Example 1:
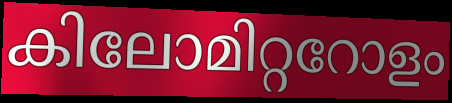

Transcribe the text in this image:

കിലോമിറ്ററോളം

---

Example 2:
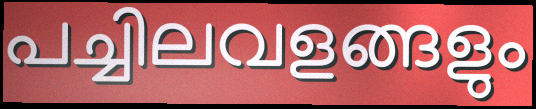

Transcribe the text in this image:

പച്ചിലവളങ്ങളും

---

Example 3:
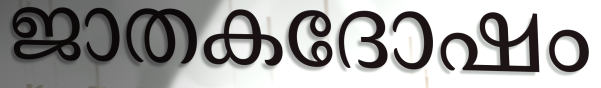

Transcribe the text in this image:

ജാതകദോഷം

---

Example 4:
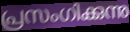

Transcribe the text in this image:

പ്രസംഗിക്കുന്നു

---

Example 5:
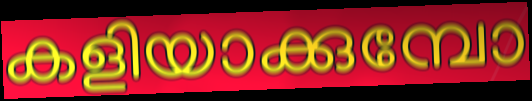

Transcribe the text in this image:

കളിയാക്കുമ്പോ